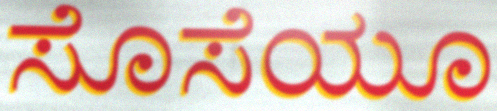
ಸೊಸೆಯೂ